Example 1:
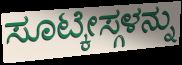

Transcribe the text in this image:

ಸೂಟ್ಕೇಸ್ಗಳನ್ನು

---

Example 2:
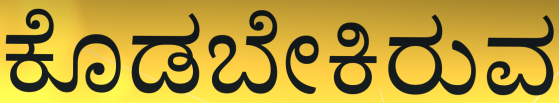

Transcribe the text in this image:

ಕೊಡಬೇಕಿರುವ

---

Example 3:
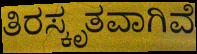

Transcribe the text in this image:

ತಿರಸ್ಕೃತವಾಗಿವೆ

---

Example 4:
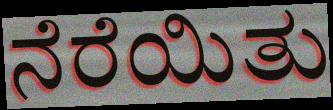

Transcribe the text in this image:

ನೆರೆಯಿತು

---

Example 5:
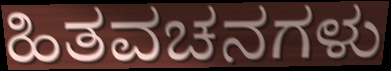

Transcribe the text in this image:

ಹಿತವಚನಗಳು